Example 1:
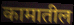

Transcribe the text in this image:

कामातील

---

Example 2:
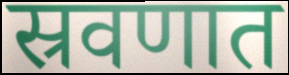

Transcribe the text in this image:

स्रवणात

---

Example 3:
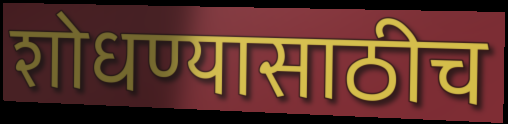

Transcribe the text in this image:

शोधण्यासाठीच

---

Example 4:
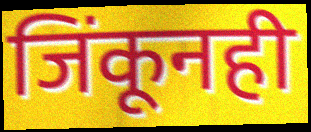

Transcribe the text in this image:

जिंकूनही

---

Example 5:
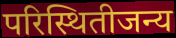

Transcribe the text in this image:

परिस्थितीजन्य